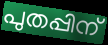
പുതപ്പിന്